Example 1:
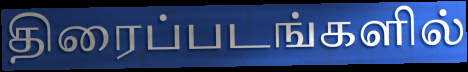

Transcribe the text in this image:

திரைப்படங்களில்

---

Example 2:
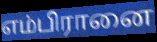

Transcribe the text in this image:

எம்பிரானை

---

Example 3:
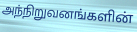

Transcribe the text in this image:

அந்நிறுவனங்களின்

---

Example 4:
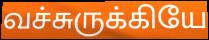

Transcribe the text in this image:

வச்சுருக்கியே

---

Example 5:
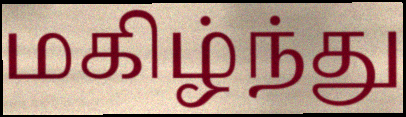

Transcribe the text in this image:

மகிழ்ந்து